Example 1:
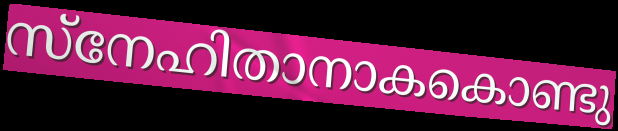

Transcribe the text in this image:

സ്നേഹിതാനാകകൊണ്ടു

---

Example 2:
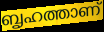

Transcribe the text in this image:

ബൃഹത്താണ്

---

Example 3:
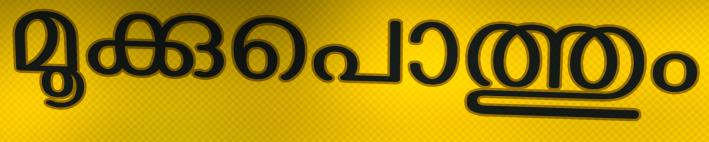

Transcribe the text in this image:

മൂക്കുപൊത്തും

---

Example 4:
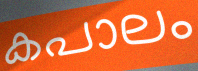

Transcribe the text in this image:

കപാലം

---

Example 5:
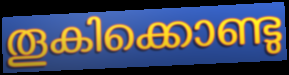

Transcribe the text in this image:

തൂകിക്കൊണ്ടു